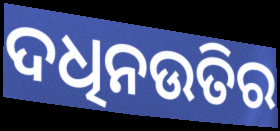
ଦଧିନଉତିର